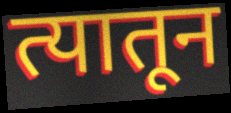
त्‍यातून